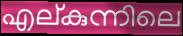
എല്കുന്നിലെ